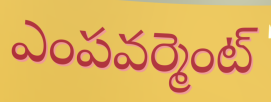
ఎంపవర్మెంట్